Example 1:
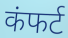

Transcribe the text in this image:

कंफर्ट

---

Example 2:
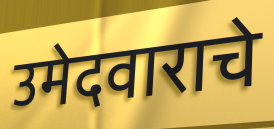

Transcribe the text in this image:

उमेदवाराचे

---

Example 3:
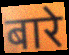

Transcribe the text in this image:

बारे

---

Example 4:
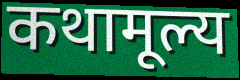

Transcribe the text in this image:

कथामूल्य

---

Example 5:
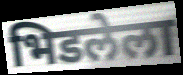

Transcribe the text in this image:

भिडलेला